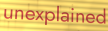
unexplained